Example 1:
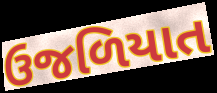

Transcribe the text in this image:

ઉજળિયાત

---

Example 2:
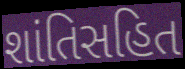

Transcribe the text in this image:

શાંતિસહિત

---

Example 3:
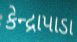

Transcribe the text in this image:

કેન્દ્રાપાડા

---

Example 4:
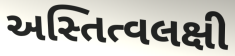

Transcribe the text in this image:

અસ્તિત્વલક્ષી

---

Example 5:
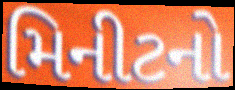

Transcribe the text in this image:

મિનીટનો